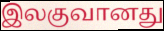
இலகுவானது